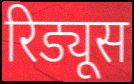
रिड्यूस